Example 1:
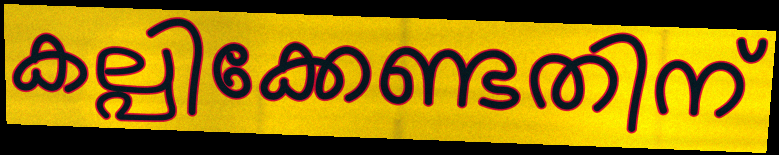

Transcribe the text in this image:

കല്പിക്കേണ്ടതിന്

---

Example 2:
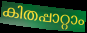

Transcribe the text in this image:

കിതപ്പാറ്റാം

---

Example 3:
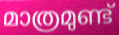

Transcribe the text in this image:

മാത്രമുണ്ട്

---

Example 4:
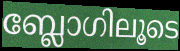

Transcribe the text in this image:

ബ്ലോഗിലൂടെ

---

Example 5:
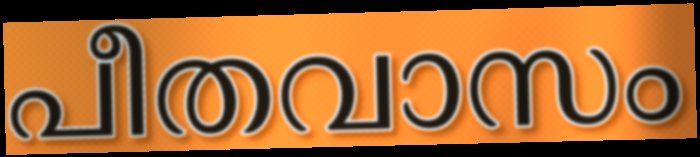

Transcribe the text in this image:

പീതവാസം